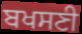
ਬਖਸਣੀ